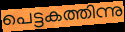
പെട്ടകത്തിന്നു